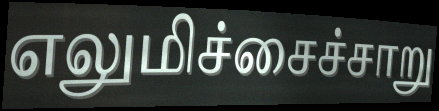
எலுமிச்சைச்சாறு